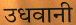
उधवानी